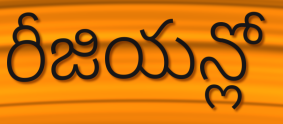
రీజియన్లో